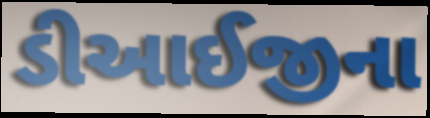
ડીઆઈજીના